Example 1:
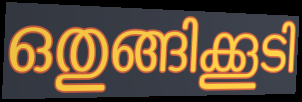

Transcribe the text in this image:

ഒതുങ്ങിക്കൂടി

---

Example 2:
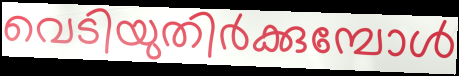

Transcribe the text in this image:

വെടിയുതിർക്കുമ്പോൾ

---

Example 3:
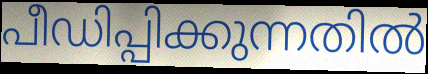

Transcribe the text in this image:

പീഡിപ്പിക്കുന്നതിൽ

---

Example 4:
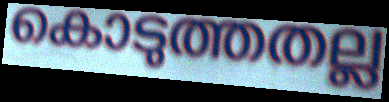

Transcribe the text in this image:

കൊടുത്തതല്ല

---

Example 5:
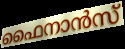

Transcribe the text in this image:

ഫൈനാൻസ്